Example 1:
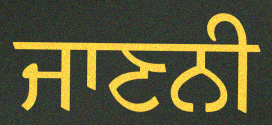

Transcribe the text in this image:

ਜਾਣਨੀ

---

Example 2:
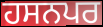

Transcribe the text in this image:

ਹਸਨਪਰ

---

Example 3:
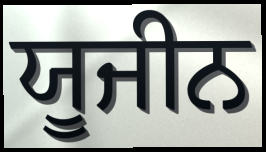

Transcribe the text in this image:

ਯੂਜੀਨ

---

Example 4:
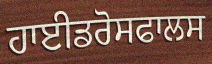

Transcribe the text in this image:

ਹਾਈਡਰੋਸਫਾਲਸ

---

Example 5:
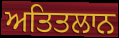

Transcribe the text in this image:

ਅਤਿਤਲਾਨ